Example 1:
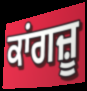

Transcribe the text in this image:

ਕਾਂਗਜ਼ੂ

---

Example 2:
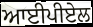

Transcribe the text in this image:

ਆਈਪੀਏਲ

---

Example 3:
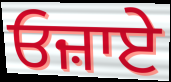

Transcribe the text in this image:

ਓਜ਼ਾਏ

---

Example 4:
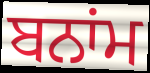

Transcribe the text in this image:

ਬਨਾਂਮ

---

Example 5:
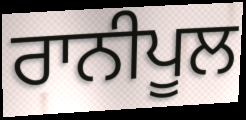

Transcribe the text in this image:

ਰਾਨੀਪੂਲ